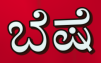
ಬೆಷೆ